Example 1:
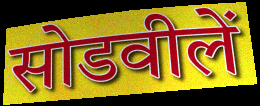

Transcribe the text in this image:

सोडवीलें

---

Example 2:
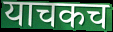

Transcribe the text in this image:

याचकच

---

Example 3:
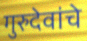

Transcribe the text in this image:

गुरुदेवांचे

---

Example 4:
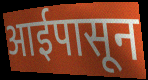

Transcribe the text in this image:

आईपासून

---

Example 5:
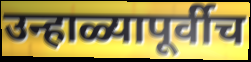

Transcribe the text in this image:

उन्हाळ्यापूर्वीच